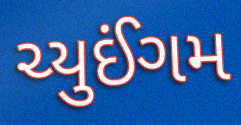
ચ્યુઈંગમ